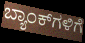
ಬ್ಯಾಂಕ್‌ಗಳಿಗೆ